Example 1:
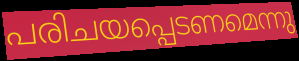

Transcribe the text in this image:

പരിചയപ്പെടണമെന്നു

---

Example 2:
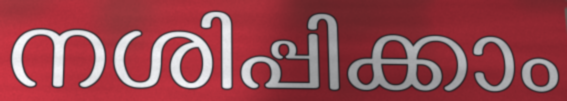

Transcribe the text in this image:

നശിപ്പിക്കാം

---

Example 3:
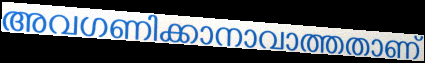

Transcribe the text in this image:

അവഗണിക്കാനാവാത്തതാണ്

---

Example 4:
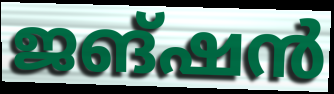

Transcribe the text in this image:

ജങ്ഷൻ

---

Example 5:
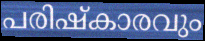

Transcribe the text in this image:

പരിഷ്കാരവും